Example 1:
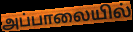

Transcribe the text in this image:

அப்பாலையில்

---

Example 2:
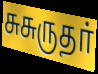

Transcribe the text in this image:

சுசுருதர்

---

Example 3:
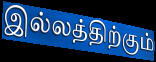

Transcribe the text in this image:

இல்லத்திற்கும்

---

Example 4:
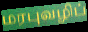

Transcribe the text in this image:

மரபுவழிப்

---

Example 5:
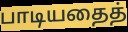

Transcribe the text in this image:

பாடியதைத்